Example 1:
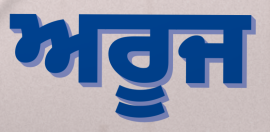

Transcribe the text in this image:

ਅਰੂਜ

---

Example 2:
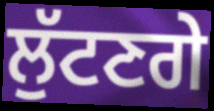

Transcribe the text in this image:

ਲੁੱਟਣਗੇ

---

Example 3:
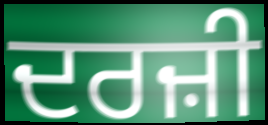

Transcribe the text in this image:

ਦਰਜ਼ੀ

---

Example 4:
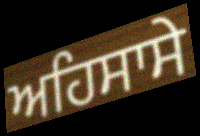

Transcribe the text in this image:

ਅਹਿਸਾਸੇ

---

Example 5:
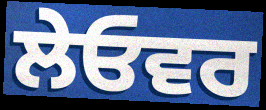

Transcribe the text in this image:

ਲੇਓਵਰ